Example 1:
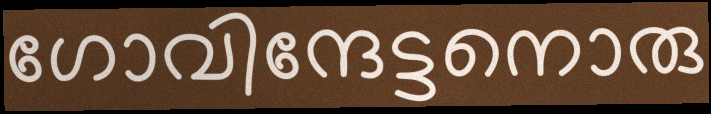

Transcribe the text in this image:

ഗോവിന്ദേട്ടനൊരു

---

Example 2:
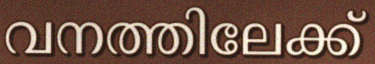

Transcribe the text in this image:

വനത്തിലേക്ക്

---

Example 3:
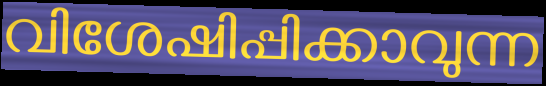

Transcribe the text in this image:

വിശേഷിപ്പിക്കാവുന്ന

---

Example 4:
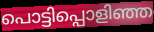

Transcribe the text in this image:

പൊട്ടിപ്പൊളിഞ്ഞ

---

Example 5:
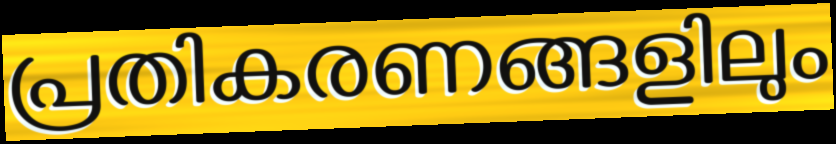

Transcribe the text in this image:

പ്രതികരണങ്ങളിലും